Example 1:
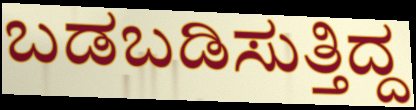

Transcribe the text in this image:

ಬಡಬಡಿಸುತ್ತಿದ್ದ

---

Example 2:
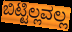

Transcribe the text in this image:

ಬಿಟ್ಟಿಲ್ಲವಲ್ಲ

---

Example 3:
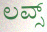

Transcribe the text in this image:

ಲವ್ಸ್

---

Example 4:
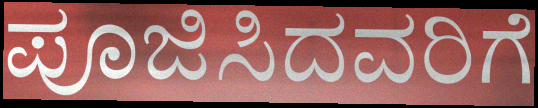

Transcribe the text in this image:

ಪೂಜಿಸಿದವರಿಗೆ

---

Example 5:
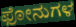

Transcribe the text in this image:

ಫೋನುಗಳ